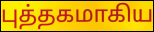
புத்தகமாகிய